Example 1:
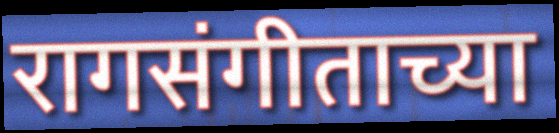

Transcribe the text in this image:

रागसंगीताच्या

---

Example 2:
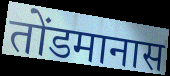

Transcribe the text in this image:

तोंडमानास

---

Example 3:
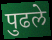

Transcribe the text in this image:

पुढले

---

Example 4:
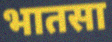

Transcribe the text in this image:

भातसा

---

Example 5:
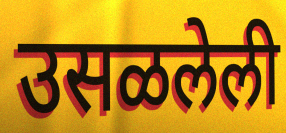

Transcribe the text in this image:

उसळलेली